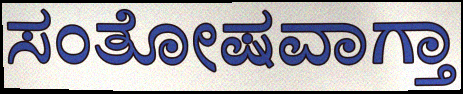
ಸಂತೋಷವಾಗ್ತಾ